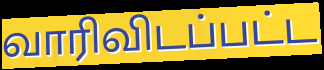
வாரிவிடப்பட்ட